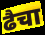
ढैचा